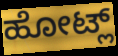
ಹೋಟ್ಲ್